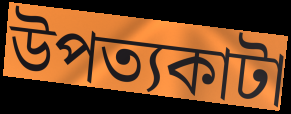
উপত্যকাটা